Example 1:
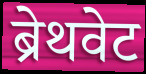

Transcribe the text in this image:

ब्रेथवेट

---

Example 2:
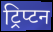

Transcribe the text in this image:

ट्रिप्टन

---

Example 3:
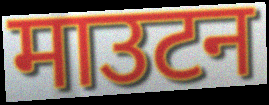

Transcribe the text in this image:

माउटन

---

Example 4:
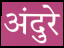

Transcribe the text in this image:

अंदुरे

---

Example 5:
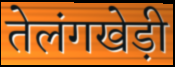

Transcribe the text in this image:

तेलंगखेड़ी